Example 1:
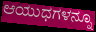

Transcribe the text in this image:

ಆಯುಧಗಳನ್ನೂ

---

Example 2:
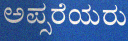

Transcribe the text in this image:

ಅಪ್ಸರೆಯರು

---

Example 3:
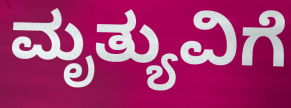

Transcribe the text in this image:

ಮೃತ್ಯುವಿಗೆ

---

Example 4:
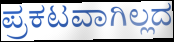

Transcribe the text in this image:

ಪ್ರಕಟವಾಗಿಲ್ಲದ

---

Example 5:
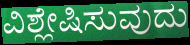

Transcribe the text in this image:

ವಿಶ್ಲೇಷಿಸುವುದು